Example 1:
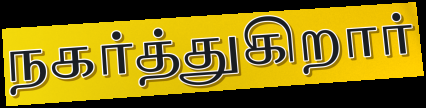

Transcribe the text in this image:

நகர்த்துகிறார்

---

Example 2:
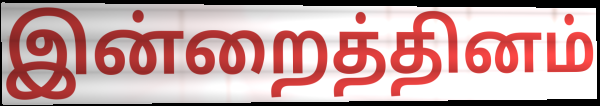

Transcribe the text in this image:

இன்றைத்தினம்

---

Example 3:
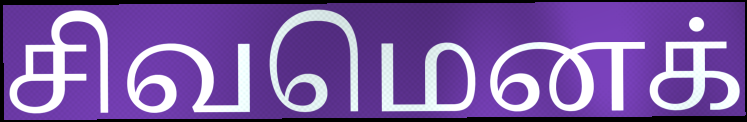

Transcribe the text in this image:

சிவமெனக்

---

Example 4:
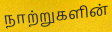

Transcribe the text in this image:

நாற்றுகளின்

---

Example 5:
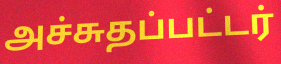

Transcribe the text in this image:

அச்சுதப்பட்டர்